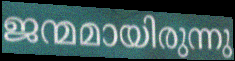
ജന്മമായിരുന്നു